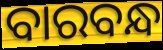
ବାରବନ୍ଧ